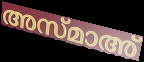
അസ്മാഅ്